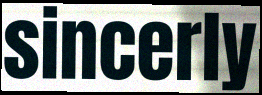
sincerly